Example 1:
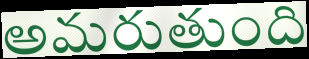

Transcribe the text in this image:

అమరుతుంది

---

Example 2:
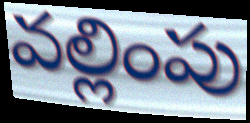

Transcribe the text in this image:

వల్లింపు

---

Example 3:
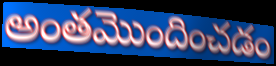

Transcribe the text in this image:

అంతమొందించడం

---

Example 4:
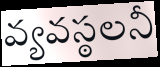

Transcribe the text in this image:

వ్యవస్ఠలనీ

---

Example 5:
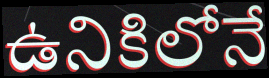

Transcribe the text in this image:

ఉనికిలోనే